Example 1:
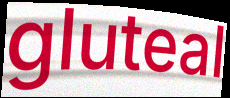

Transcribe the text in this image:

gluteal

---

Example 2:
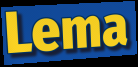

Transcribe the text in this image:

Lema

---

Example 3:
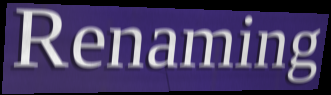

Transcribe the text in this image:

Renaming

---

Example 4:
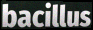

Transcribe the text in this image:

bacillus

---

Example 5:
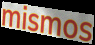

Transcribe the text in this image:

mismos